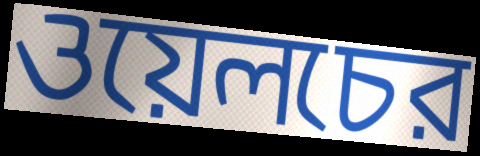
ওয়েলচের